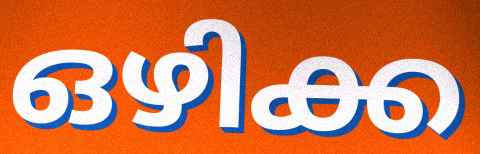
ഒഴിക്ക